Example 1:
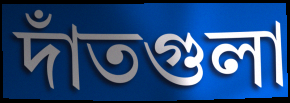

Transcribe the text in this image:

দাঁতগুলা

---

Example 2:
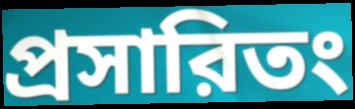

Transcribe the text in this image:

প্রসারিতং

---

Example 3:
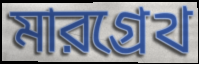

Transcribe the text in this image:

মারগ্রেথ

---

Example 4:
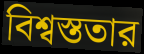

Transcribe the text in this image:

বিশ্বস্ততার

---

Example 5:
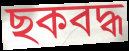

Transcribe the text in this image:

ছকবদ্ধ